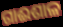
ଗାଈଶାଳ